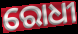
ରୋଧୀ